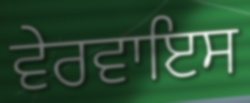
ਵੇਰਵਾਇਸ